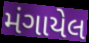
મંગાયેલ